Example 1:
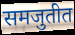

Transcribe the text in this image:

समजुतीत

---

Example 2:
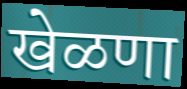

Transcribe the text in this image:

खेळणा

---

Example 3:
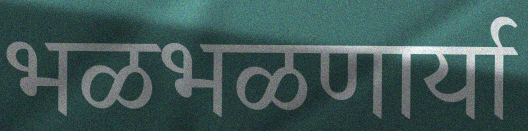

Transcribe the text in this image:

भळभळणार्या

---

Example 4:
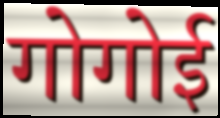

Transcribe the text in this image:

गोगोई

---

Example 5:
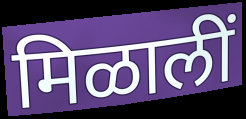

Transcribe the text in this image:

मिळालीं